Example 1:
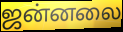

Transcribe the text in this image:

ஜன்னலை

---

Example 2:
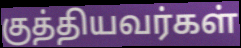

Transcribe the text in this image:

குத்தியவர்கள்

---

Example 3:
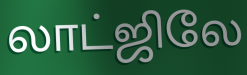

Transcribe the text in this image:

லாட்ஜிலே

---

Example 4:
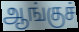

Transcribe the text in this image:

ஆங்குச்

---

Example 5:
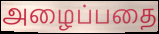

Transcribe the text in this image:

அழைப்பதை